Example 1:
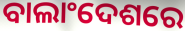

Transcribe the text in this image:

ବାଲାଂଦେଶରେ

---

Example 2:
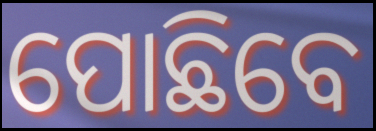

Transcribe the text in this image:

ପୋଛିବେ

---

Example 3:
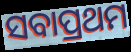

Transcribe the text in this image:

ସବାପ୍ରଥମ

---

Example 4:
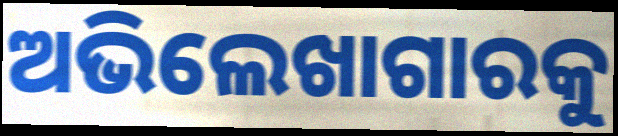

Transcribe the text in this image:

ଅଭିଲେଖାଗାରକୁ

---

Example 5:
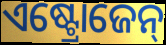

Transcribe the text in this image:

ଏଷ୍ଟ୍ରୋଜେନ୍